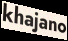
khajano